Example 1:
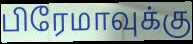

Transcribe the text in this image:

பிரேமாவுக்கு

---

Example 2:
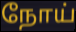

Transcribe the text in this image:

நோய்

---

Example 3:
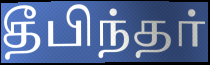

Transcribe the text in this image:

தீபிந்தர்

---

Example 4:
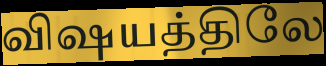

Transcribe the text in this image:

விஷயத்திலே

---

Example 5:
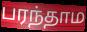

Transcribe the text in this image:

பரந்தாம